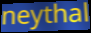
neythal